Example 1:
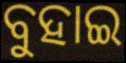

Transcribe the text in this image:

ବୁହାଇ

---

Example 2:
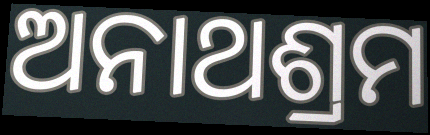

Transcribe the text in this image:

ଅନାଥଶ୍ରମ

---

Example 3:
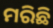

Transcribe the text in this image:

ମରିଛି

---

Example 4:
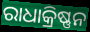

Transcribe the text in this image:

ରାଧାକ୍ରିଷ୍ଣନ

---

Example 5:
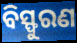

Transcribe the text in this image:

ବିସ୍ଫୁରଣ